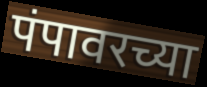
पंपावरच्या